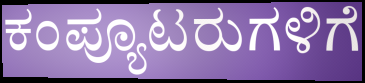
ಕಂಪ್ಯೂಟರುಗಳಿಗೆ